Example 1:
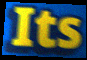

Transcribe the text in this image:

Its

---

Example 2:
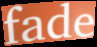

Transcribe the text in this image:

fade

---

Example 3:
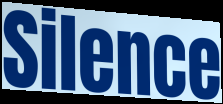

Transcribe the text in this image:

Silence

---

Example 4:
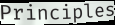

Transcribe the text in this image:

Principles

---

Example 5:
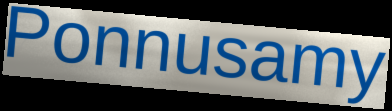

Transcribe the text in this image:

Ponnusamy